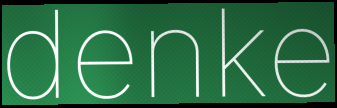
denke